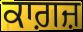
ਕਾਗ਼ਜ਼